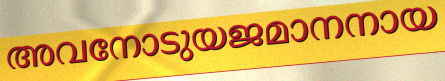
അവനോടുയജമാനനായ